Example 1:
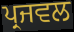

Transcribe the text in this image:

ਪ੍ਰਜਵਲ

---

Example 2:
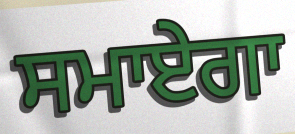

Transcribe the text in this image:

ਸਮਾਏਗਾ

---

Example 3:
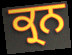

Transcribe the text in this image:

ਕ੍ਰਨ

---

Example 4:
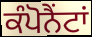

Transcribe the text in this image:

ਕੰਪੋਨੈਂਟਾਂ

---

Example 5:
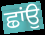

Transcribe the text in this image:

ਛਾਂਉ